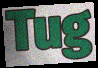
Tug